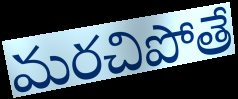
మరచిపోతే